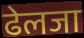
ढेलजा